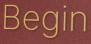
Begin